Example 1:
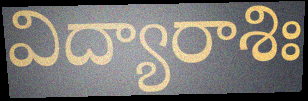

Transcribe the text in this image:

విద్యారాశిః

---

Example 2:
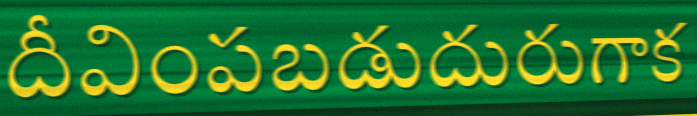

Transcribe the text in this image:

దీవింపబడుదురుగాక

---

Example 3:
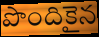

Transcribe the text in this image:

పొందికైన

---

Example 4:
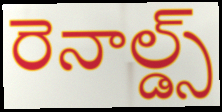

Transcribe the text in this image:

రెనాల్డ్స్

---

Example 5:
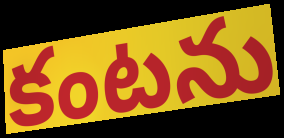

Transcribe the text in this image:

కంటను